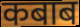
कबाब